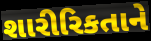
શારીરિકતાને